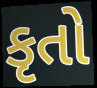
કૃતો